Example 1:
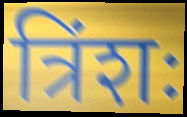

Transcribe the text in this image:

त्रिंशः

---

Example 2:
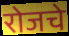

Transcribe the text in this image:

रोजचे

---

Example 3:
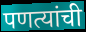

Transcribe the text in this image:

पणत्यांची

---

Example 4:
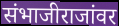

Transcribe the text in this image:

संभाजीराजांवर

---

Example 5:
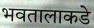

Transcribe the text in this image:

भवतालाकडे